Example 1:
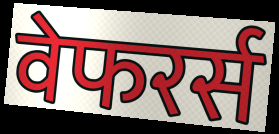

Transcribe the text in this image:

वेफरर्स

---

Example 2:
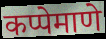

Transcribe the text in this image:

कप्पेमाणे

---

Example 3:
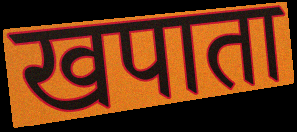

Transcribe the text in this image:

खपाता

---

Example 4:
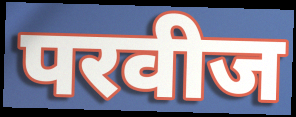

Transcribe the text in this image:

परवीज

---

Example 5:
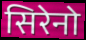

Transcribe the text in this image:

सिरेनो